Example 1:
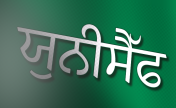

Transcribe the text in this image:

ਯੁਨੀਸੈੱਫ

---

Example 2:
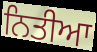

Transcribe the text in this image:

ਨਿਤੀਆ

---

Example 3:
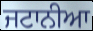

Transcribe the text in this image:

ਜਟਾਨੀਆ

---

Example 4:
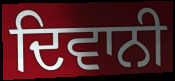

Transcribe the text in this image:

ਦਿਵਾਨੀ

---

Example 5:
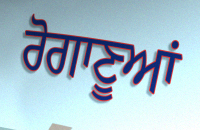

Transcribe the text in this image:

ਰੋਗਾਣੂਆਂ